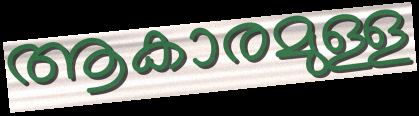
ആകാരമുള്ള